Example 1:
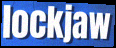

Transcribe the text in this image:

lockjaw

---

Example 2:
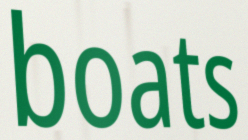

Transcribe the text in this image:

boats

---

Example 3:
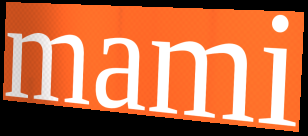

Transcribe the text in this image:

mami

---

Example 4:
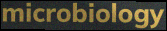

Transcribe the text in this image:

microbiology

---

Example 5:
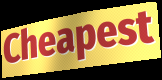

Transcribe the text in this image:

Cheapest